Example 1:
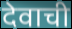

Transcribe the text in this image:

देवाची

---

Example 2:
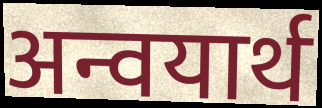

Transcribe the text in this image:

अन्वयार्थ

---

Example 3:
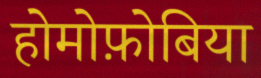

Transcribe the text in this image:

होमोफ़ोबिया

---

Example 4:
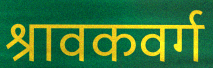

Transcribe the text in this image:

श्रावकवर्ग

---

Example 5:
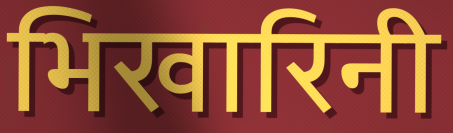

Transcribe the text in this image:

भिखारिनी